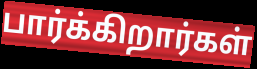
பார்க்கிறார்கள்